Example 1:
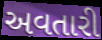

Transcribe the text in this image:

અવતારી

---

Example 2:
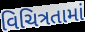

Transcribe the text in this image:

વિચિત્રતામાં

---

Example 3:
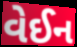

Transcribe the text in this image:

વેઈન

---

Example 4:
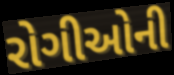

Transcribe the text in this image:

રોગીઓની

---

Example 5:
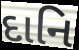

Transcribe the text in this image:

દાનિ